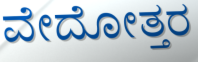
ವೇದೋತ್ತರ